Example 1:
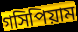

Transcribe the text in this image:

গসিপিয়াম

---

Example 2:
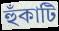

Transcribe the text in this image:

হুঁকাটি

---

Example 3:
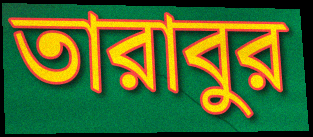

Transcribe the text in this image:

তারাবুর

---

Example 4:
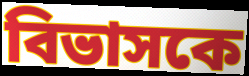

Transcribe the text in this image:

বিভাসকে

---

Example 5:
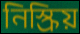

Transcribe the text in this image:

নিস্ক্রিয়